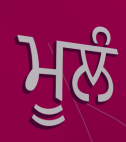
ਮੂਲੰ